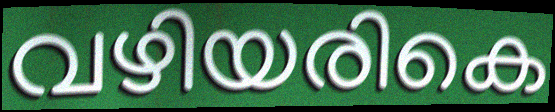
വഴിയരികെ